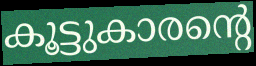
കൂട്ടുകാരന്റെ